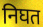
निघत